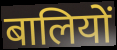
बालियों